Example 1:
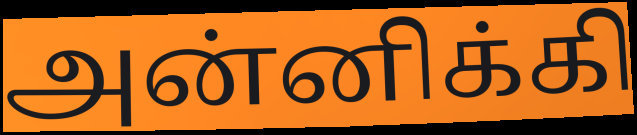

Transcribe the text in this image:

அன்னிக்கி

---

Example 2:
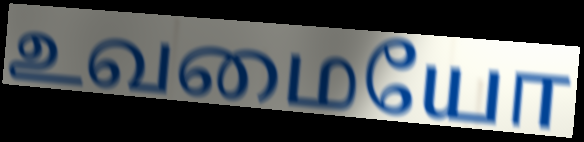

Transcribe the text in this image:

உவமையோ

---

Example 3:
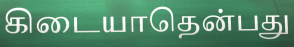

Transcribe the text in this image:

கிடையாதென்பது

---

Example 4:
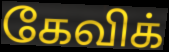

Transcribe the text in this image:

கேவிக்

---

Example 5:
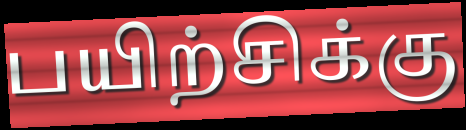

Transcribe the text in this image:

பயிற்சிக்கு